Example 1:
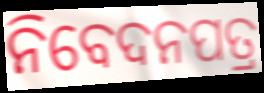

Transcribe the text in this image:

ନିବେଦନପତ୍ର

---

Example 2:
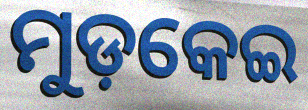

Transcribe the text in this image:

ମୁଡ଼କେଇ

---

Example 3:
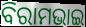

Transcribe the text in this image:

ବିରାମଭାଇ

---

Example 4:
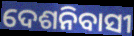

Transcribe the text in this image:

ଦେଶନିବାସୀ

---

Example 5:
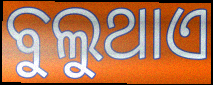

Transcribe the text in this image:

ବୁଲୁଥାଏ